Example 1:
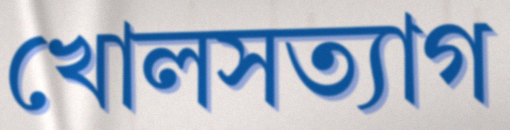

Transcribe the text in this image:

খোলসত্যাগ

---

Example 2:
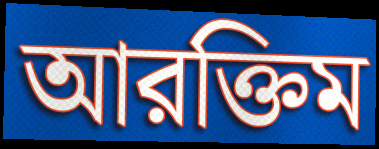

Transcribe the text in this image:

আরক্তিম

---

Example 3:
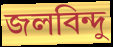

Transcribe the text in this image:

জলবিন্দু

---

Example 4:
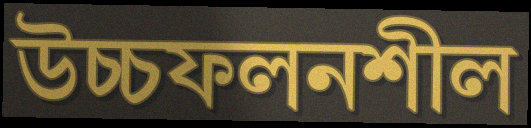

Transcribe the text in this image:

উচ্চফলনশীল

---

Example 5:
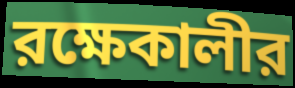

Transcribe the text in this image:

রক্ষেকালীর